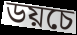
ডয়চে